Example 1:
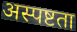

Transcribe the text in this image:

अस्पष्टता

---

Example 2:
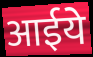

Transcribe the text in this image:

आईये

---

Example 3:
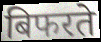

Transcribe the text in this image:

बिफरते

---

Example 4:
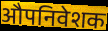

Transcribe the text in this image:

औपनिवेशक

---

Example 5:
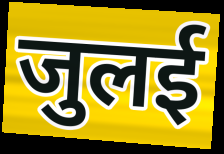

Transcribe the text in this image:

जुलई